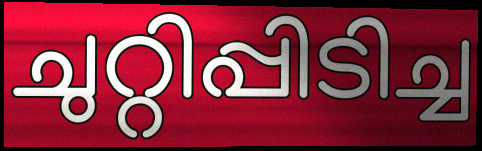
ചുറ്റിപ്പിടിച്ച